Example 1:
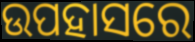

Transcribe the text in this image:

ଉପହାସରେ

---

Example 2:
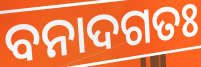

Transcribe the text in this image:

ବନାଦଗତଃ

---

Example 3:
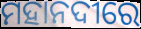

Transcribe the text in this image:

ମହାନଦୀରେ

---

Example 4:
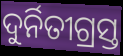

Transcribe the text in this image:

ଦୁର୍ନିତୀଗ୍ରସ୍ତ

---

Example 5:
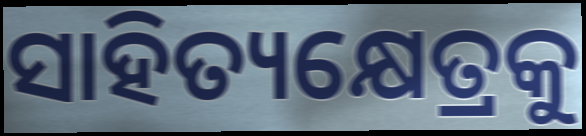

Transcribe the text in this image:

ସାହିତ୍ୟକ୍ଷେତ୍ରକୁ